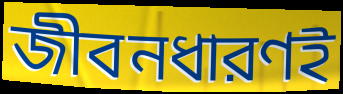
জীবনধারণই